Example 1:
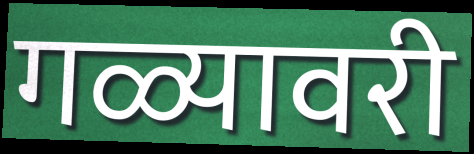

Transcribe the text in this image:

गळ्यावरी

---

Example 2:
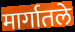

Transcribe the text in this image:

मार्गातले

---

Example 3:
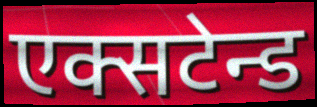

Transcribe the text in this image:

एक्सटेन्ड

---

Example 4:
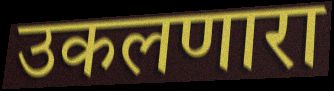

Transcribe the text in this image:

उकलणारा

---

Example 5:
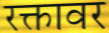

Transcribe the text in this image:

रक्तावर